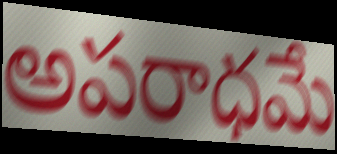
అపరాధమే